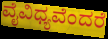
ವೈವಿಧ್ಯವೆಂದರೆ